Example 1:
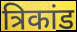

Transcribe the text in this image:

त्रिकांड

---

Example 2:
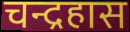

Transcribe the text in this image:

चन्द्रहास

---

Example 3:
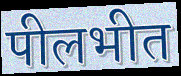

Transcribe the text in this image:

पीलभीत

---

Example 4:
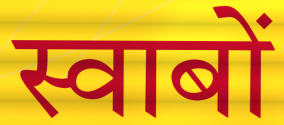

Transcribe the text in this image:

स्वाबों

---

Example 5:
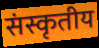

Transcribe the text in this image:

संस्कृतीय